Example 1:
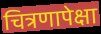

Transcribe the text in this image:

चित्रणापेक्षा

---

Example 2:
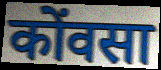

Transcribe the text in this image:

कोंवसा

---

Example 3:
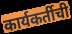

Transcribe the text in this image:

कार्यकर्तीची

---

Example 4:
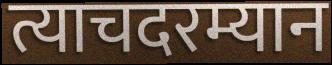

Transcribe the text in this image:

त्याचदरम्यान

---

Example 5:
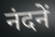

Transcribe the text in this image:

नंदनें